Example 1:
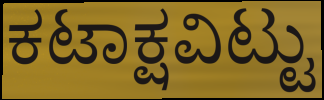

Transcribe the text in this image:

ಕಟಾಕ್ಷವಿಟ್ಟು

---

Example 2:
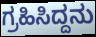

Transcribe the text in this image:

ಗ್ರಹಿಸಿದ್ದನು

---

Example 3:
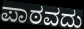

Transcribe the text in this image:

ಪಾಠವದು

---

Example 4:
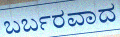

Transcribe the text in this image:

ಬರ್ಬರವಾದ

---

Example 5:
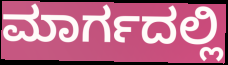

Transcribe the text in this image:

ಮಾರ್ಗದಲ್ಲಿ